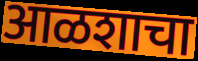
आळशाचा